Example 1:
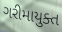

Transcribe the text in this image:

ગરીમાયુક્ત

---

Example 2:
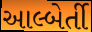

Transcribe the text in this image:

આલ્બેર્તી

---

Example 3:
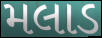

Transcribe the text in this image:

મલાડ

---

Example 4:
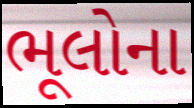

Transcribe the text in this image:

ભૂલોના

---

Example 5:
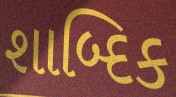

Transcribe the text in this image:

શાબ્દિક